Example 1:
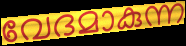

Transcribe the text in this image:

വേദമാകുന്ന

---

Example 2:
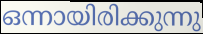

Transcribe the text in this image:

ഒന്നായിരിക്കുന്നു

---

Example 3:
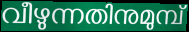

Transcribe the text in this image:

വീഴുന്നതിനുമുമ്പ്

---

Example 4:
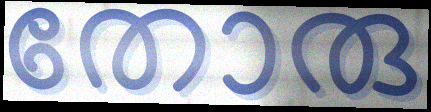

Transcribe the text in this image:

തോരു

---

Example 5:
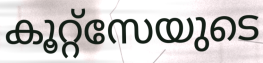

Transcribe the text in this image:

കൂറ്റ്സേയുടെ